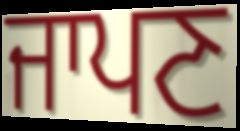
ਜਾਪਣ